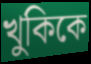
খুকিকে